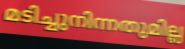
മടിച്ചുനിന്നതുമില്ല